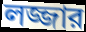
লজ্জার